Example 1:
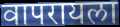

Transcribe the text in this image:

वापरायला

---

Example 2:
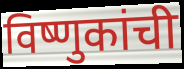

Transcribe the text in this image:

विष्णुकांची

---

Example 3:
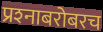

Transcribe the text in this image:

प्रश्‍नाबरोबरच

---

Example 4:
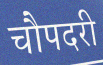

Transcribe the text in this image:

चौपदरी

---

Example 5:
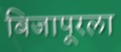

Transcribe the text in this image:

बिजापूरला